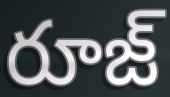
రూజ్